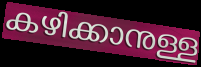
കഴിക്കാനുള്ള